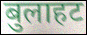
बुलाहट